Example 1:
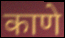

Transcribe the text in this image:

काणे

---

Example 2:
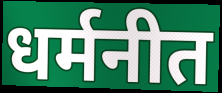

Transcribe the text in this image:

धर्मनीत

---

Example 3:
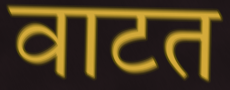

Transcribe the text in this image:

वाटत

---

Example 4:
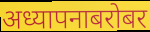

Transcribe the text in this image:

अध्यापनाबरोबर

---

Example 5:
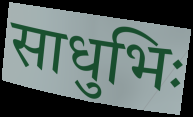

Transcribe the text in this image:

साधुभिः